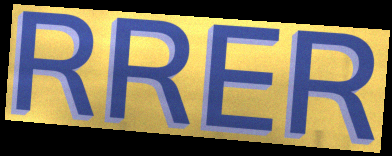
RRER